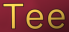
Tee